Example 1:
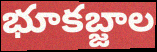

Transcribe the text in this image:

భూకబ్జాల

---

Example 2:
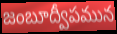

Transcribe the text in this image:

జంబూద్వీపమున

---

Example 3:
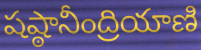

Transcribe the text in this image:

షష్ఠానీంద్రియాణి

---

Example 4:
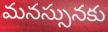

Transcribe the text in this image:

మనస్సునకు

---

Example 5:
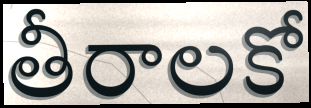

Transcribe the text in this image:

తీరాలకో